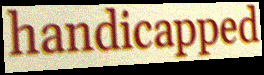
handicapped